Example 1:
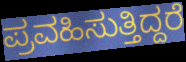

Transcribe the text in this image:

ಪ್ರವಹಿಸುತ್ತಿದ್ದರೆ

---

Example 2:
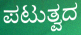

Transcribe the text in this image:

ಪಟುತ್ವದ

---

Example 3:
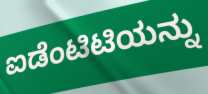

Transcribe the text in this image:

ಐಡೆಂಟಿಟಿಯನ್ನು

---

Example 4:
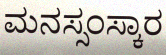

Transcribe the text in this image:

ಮನಸ್ಸಂಸ್ಕಾರ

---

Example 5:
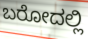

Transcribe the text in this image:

ಬರೋದಲ್ಲಿ